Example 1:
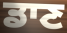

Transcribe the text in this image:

ਡਾਣ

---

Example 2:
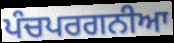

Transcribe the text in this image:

ਪੰਚਪਰਗਨੀਆ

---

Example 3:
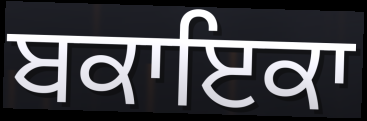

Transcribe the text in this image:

ਬਕਾਇਕਾ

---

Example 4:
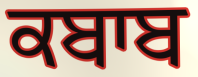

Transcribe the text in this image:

ਕਬਾਬ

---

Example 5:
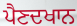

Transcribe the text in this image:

ਪੈਣਦਖਾਨ